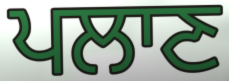
ਪਲਾਣ